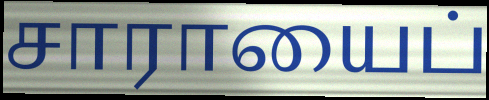
சாராயைப்